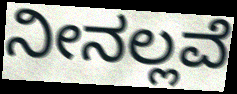
ನೀನಲ್ಲವೆ